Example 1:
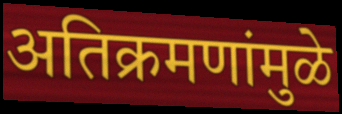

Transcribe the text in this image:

अतिक्रमणांमुळे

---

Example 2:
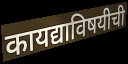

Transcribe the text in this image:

कायद्याविषयीची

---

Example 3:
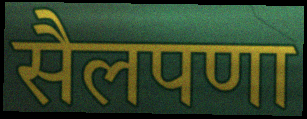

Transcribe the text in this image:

सैलपणा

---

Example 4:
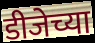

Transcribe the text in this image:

डीजेच्या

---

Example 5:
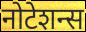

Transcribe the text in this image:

नोटेशन्स